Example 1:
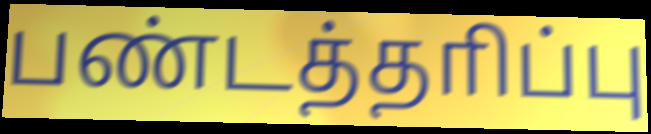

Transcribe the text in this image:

பண்டத்தரிப்பு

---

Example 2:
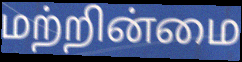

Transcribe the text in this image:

மற்றின்மை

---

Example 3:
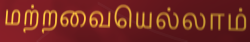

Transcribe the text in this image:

மற்றவையெல்லாம்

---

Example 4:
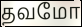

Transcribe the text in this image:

தவமோ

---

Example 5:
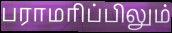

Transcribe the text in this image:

பராமரிப்பிலும்